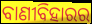
ବାଣୀବିହାରର